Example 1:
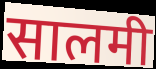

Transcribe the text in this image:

सालमी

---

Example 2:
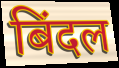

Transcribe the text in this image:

बिंदल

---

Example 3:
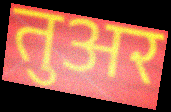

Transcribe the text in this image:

तुअर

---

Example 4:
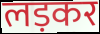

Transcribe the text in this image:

लड़कर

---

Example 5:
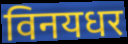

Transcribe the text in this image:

विनयधर